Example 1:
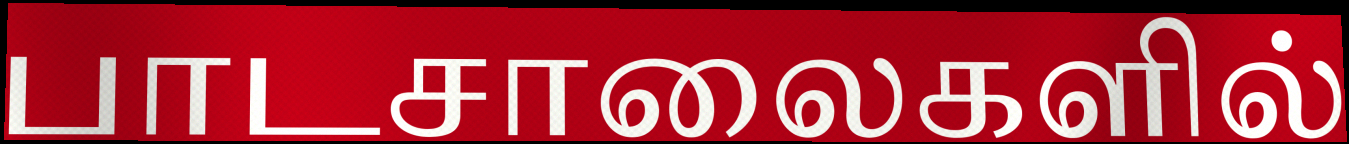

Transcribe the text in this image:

பாடசாலைகளில்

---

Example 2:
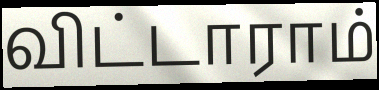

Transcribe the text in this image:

விட்டாராம்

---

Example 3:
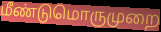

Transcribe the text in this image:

மீண்டுமொருமுறை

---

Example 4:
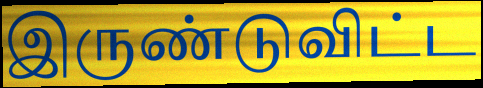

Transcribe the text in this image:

இருண்டுவிட்ட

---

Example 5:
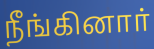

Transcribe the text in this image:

நீங்கினார்